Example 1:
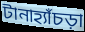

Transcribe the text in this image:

টানাহ্যাঁচড়া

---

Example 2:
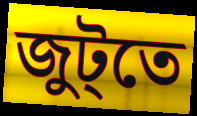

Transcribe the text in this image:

জুট্তে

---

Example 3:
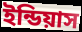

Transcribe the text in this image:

ইন্ডিয়াস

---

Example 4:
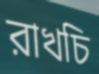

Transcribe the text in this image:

রাখচি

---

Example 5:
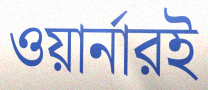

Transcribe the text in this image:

ওয়ার্নারই